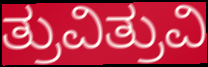
ತ್ರುವಿತ್ರುವಿ